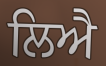
ਲਿਐ